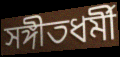
সঙ্গীতধর্মী